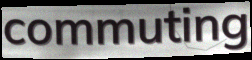
commuting